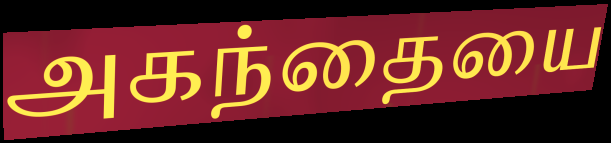
அகந்தையை